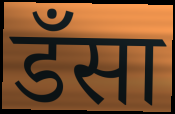
डँसा